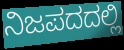
ನಿಜಪದದಲ್ಲಿ